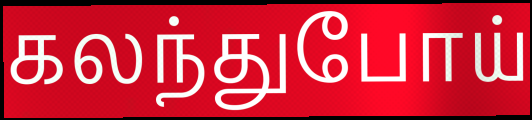
கலந்துபோய்